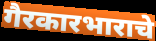
गैरकारभाराचे